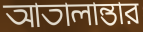
আতালান্তার